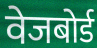
वेजबोर्ड